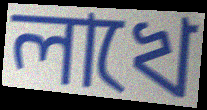
লাখে